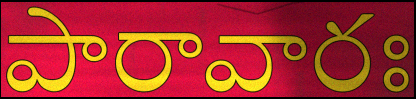
పారావారః